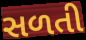
સળતી